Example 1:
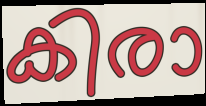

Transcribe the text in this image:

കിരാ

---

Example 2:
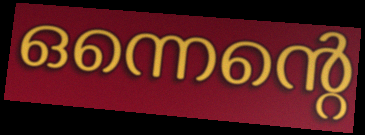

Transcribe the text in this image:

ഒന്നെന്റെ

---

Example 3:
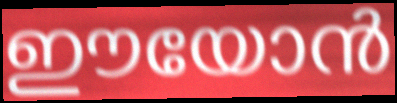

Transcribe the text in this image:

ഈയോൻ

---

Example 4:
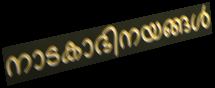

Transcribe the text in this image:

നാടകാഭിനയങ്ങൾ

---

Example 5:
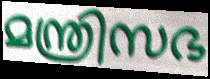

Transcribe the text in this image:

മന്ത്രിസഭ